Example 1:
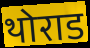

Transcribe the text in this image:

थोराड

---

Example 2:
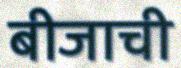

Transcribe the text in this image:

बीजाची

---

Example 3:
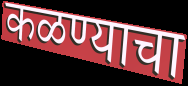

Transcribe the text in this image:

कळण्याचा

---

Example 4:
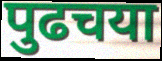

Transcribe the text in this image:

पुढचया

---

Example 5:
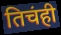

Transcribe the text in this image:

तिचंही